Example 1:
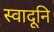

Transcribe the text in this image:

स्वादूनि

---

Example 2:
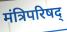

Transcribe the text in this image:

मंत्रिपरिषद्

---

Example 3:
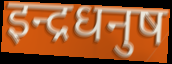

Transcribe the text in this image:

इन्‍द्रधनुष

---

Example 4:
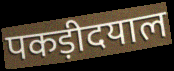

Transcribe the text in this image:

पकड़ीदयाल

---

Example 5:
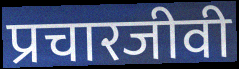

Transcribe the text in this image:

प्रचारजीवी